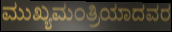
ಮುಖ್ಯಮಂತ್ರಿಯಾದವರ